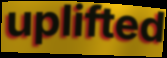
uplifted